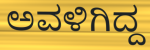
ಅವಳಿಗಿದ್ದ